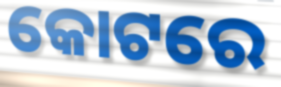
କୋଟରେ